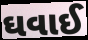
ઘવાઈ